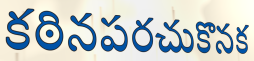
కఠినపరచుకొనక